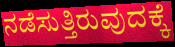
ನಡೆಸುತ್ತಿರುವುದಕ್ಕೆ